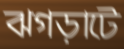
ঝগড়াটে